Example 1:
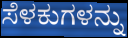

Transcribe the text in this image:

ಸೆಳಕುಗಳನ್ನು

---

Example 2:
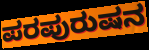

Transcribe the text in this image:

ಪರಪುರುಷನ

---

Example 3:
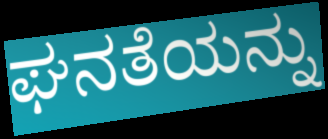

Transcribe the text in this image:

ಘನತೆಯನ್ನು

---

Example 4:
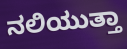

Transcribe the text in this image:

ನಲಿಯುತ್ತಾ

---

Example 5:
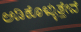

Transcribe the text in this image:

ಆಡಿಕೊಳ್ಳುತ್ತೇವೆ